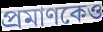
প্রমাণকেও